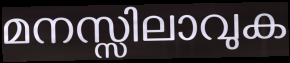
മനസ്സിലാവുക